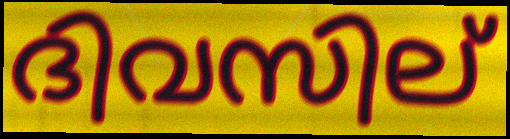
ദിവസില്